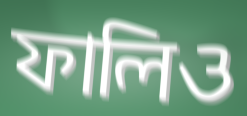
ফালিও